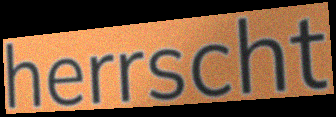
herrscht